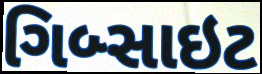
ગિબ્સાઇટ